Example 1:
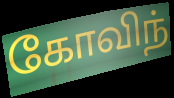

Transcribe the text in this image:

கோவிந்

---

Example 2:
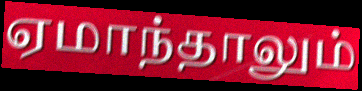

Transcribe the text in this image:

ஏமாந்தாலும்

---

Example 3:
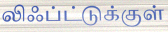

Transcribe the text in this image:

லிஃப்ட்டுக்குள்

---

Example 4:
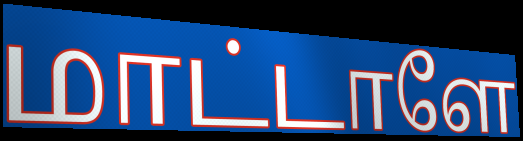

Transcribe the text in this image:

மாட்டாளே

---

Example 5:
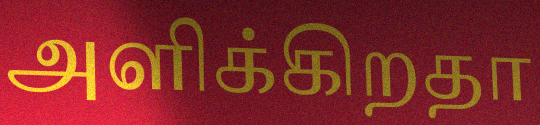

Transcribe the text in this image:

அளிக்கிறதா